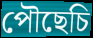
পৌছেচি